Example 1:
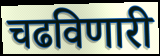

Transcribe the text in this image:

चढविणारी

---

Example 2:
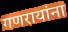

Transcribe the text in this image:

गणरायांना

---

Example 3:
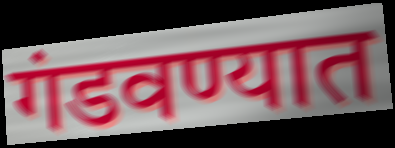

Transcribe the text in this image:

गंडवण्यात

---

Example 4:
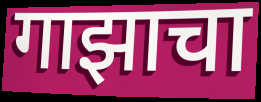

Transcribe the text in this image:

गाझाचा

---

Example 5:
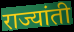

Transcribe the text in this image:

राज्यांती